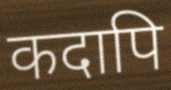
कदापि